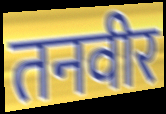
तनवीर